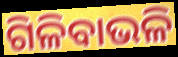
ଗିଳିବାଭଳି